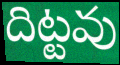
దిట్టవు